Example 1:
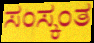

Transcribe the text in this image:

ಸಂಸ್ಕಂತ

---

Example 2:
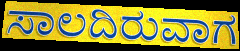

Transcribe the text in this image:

ಸಾಲದಿರುವಾಗ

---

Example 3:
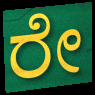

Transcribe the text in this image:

ರೇ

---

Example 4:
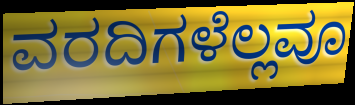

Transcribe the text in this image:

ವರದಿಗಳೆಲ್ಲವೂ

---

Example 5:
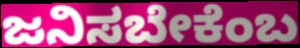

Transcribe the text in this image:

ಜನಿಸಬೇಕೆಂಬ